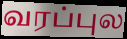
வரப்புல